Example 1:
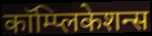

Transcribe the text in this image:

कॉम्प्लिकेशन्स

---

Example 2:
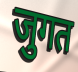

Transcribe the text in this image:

जुगत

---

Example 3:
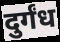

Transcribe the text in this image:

दुर्गंध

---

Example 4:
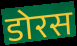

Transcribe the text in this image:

डोरस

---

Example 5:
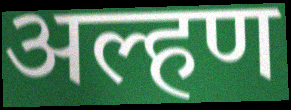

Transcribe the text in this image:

अल्हण